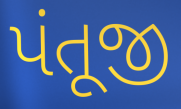
પંતૂજી